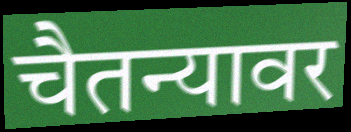
चैतन्यावर